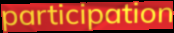
participation